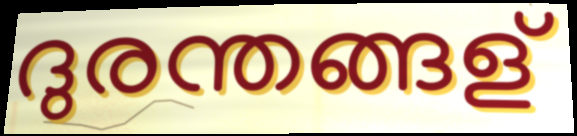
ദുരന്തങ്ങള്